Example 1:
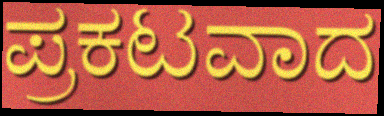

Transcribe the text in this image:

ಪ್ರಕಟವಾದ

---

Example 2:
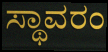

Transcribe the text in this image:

ಸ್ಥಾವರಂ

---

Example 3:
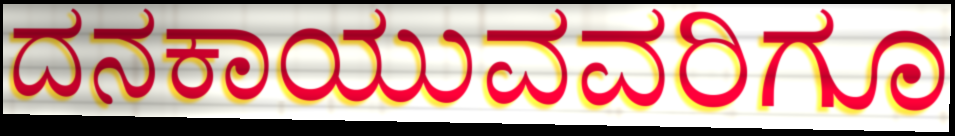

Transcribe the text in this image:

ದನಕಾಯುವವರಿಗೂ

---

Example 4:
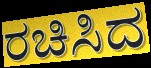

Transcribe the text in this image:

ರಚಿಸಿದ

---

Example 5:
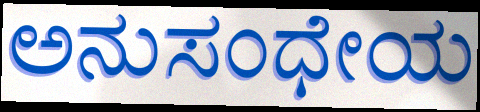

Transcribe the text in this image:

ಅನುಸಂಧೇಯ